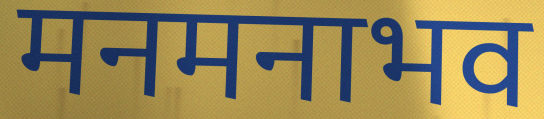
मनमनाभव